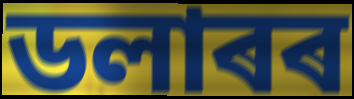
ডলাৰৰ